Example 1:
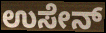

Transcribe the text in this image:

ಉಸೇನ್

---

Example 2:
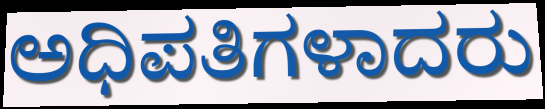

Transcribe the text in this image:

ಅಧಿಪತಿಗಳಾದರು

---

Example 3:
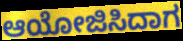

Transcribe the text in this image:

ಆಯೋಜಿಸಿದಾಗ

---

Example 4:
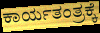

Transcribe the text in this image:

ಕಾರ್ಯತಂತ್ರಕ್ಕೆ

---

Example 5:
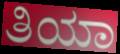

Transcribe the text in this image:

ತಿಯಾ